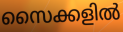
സൈക്കളിൽ